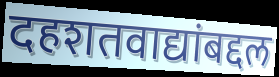
दहशतवाद्यांबद्दल